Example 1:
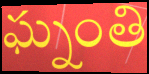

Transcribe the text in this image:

ఘ్నంతి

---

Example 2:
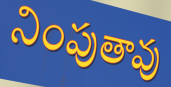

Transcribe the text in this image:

నింపుతావు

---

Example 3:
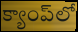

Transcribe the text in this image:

క్యాంప్‌లో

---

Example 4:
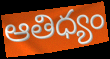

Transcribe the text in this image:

ఆతిధ్యం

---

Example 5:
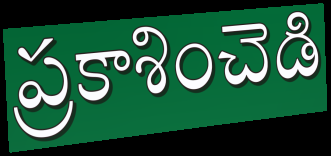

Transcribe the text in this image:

ప్రకాశించెడి